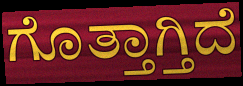
ಗೊತ್ತಾಗ್ತಿದೆ